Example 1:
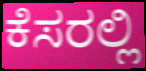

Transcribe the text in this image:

ಕೆಸರಲ್ಲಿ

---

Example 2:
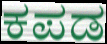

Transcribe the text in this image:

ಕಪಡ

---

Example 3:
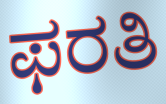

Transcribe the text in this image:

ಫರತಿ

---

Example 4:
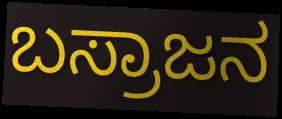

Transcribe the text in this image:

ಬಸ್ರಾಜನ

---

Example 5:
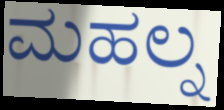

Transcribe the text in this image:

ಮಹಲ್ನ